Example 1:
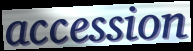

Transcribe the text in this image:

accession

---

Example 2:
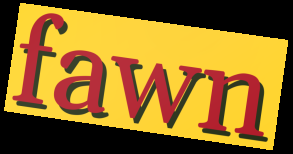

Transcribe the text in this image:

fawn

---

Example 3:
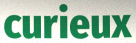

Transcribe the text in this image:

curieux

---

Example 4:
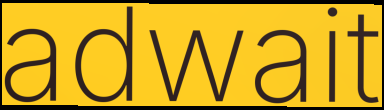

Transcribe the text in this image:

adwait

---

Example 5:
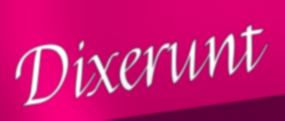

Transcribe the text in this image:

Dixerunt